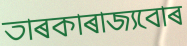
তাৰকাৰাজ্যবোৰ